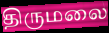
திருமலை